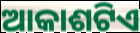
ଆକାଶଟିଏ